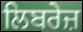
ਲਿਬਰੇਜ਼